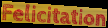
Felicitation